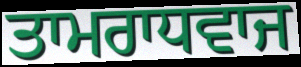
ਤਾਮਰਾਧਵਾਜ